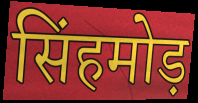
सिंहमोड़